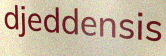
djeddensis